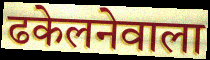
ढकेलनेवाला